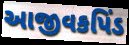
આજીવકપિંડ